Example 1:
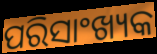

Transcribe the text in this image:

ପରିସାଂଖ୍ୟକ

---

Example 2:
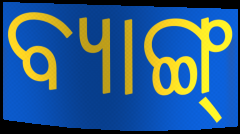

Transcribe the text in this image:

ବ୍ୟାଙ୍ଗ୍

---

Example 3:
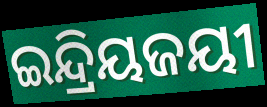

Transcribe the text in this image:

ଇନ୍ଦ୍ରିୟଜୟୀ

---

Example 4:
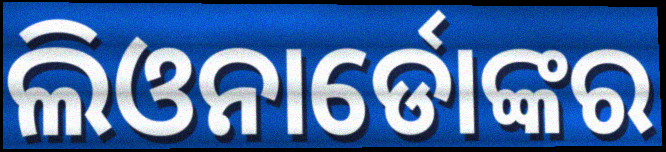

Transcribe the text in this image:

ଲିଓନାର୍ଡୋଙ୍କର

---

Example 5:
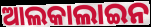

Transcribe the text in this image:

ଆଲକାଲାଇନ